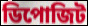
ডিপোজিট